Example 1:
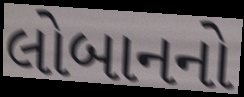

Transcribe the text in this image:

લોબાનનો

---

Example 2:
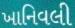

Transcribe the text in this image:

ખાનિવલી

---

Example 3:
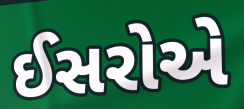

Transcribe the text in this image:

ઈસરોએ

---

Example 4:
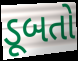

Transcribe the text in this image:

ડૂબતો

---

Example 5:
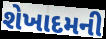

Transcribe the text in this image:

શેખાદમની